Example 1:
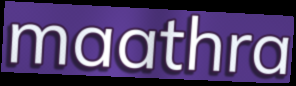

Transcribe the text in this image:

maathra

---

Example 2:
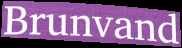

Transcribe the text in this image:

Brunvand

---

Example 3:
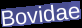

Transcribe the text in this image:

Bovidae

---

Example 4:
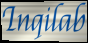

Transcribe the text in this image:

Inqilab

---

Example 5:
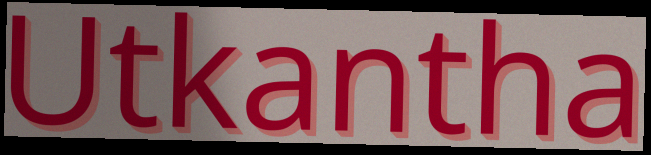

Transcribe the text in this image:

Utkantha